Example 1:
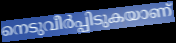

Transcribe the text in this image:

നെടുവീർപ്പിടുകയാണ്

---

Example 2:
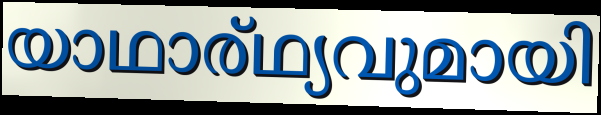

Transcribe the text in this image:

യാഥാര്ഥ്യവുമായി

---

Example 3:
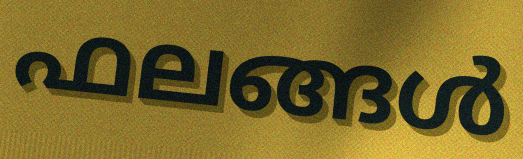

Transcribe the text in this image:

ഫലങ്ങൾ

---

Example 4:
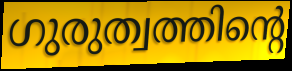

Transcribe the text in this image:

ഗുരുത്വത്തിന്റെ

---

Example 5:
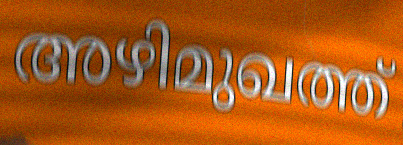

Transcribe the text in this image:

അഴിമുഖത്ത്